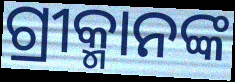
ଗ୍ରୀକ୍ମାନଙ୍କ